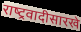
राष्ट्रवादीसारखे